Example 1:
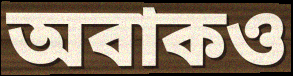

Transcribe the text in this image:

অবাকও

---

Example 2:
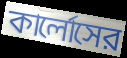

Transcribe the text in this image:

কার্লোসের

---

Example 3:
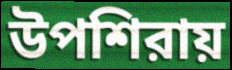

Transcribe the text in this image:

উপশিরায়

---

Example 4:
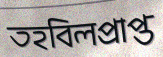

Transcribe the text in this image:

তহবিলপ্রাপ্ত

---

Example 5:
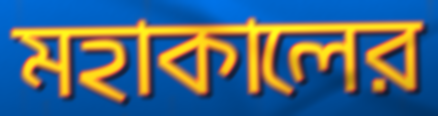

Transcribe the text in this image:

মহাকালের